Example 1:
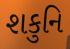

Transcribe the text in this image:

શકુનિ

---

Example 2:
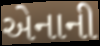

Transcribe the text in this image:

એનાની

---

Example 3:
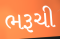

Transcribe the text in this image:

ભરૂચી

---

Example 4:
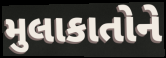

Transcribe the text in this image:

મુલાકાતોને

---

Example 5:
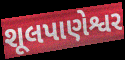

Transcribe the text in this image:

શૂલપાણેશ્વર